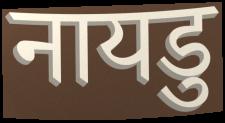
नायडु